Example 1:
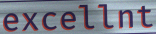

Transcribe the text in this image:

excellnt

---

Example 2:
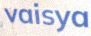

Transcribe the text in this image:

vaisya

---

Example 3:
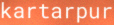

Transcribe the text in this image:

kartarpur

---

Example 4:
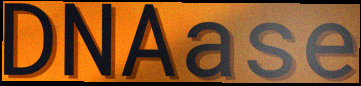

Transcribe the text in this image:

DNAase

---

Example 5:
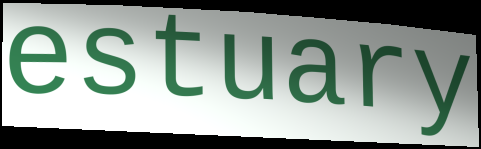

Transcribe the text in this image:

estuary